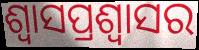
ଶ୍ଵାସପ୍ରଶ୍ଵାସର